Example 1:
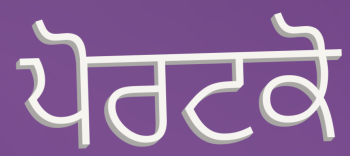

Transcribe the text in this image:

ਪੋਰਟਕੋ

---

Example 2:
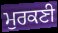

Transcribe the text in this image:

ਮੁਰਕਣੀ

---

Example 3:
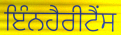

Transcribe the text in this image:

ਇੰਨਹੈਰੀਟੈੰਸ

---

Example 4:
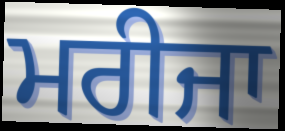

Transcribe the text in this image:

ਮਰੀਜਾ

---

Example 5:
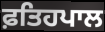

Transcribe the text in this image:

ਫ਼ਤਿਹਪਾਲ